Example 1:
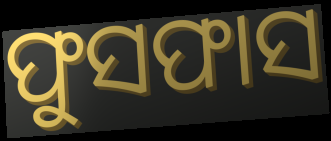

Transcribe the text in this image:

ଫୁସଫାସ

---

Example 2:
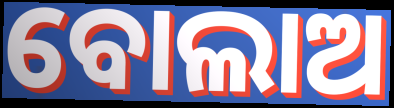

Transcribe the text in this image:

ବୋଲାଅ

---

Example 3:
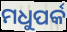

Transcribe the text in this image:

ମଧୁପର୍କ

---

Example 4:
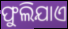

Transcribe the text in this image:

ଫୁଲିଯାଏ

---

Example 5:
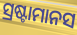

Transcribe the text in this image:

ସ୍ରଷ୍ଟାମାନସ